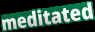
meditated